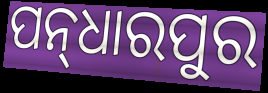
ପନ୍‌ଧାରପୁର